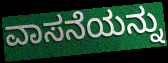
ವಾಸನೆಯನ್ನು